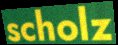
scholz